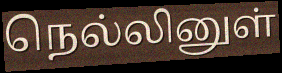
நெல்லினுள்